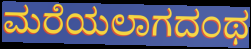
ಮರೆಯಲಾಗದಂಥ